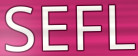
SEFL